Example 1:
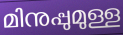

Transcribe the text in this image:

മിനുപ്പുമുള്ള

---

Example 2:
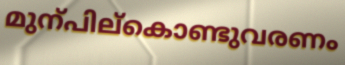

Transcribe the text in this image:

മുന്പില്കൊണ്ടുവരണം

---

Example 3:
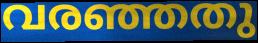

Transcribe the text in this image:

വരഞ്ഞതു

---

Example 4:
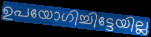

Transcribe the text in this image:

ഉപയോഗിച്ചിട്ടേയില്ല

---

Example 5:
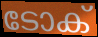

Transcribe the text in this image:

ടോക്